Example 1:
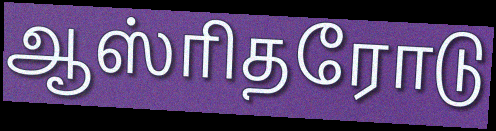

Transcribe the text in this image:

ஆஸ்ரிதரோடு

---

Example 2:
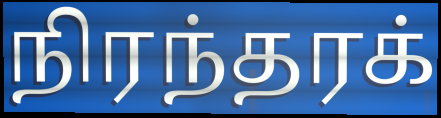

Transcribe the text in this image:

நிரந்தரக்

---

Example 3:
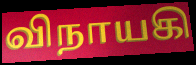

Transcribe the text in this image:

விநாயகி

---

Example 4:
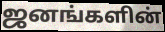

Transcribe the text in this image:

ஜனங்களின்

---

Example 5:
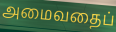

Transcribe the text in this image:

அமைவதைப்